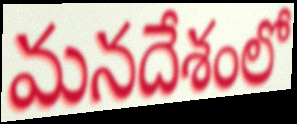
మనదేశంలో